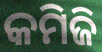
କମିଜି